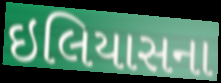
ઇલિયાસના